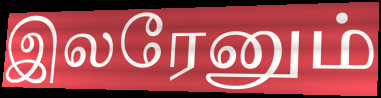
இலரேனும்